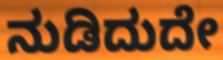
ನುಡಿದುದೇ